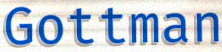
Gottman